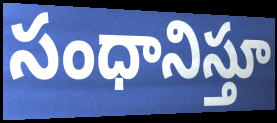
సంధానిస్తూ